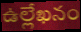
ఉల్లేఖనం